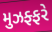
મુઝફ્ફરે